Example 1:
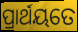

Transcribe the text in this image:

ପ୍ରାର୍ଥୟତେ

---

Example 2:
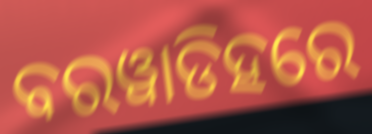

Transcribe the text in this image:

ବରୱାଡିହରେ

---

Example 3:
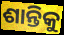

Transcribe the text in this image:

ଶାନ୍ତିକୁ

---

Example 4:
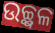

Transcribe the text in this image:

ଉଚ୍ଛ୍ୱଳ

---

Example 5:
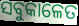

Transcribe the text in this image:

ସବୁକାଳେତ